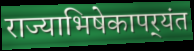
राज्याभिषेकापर्यंत